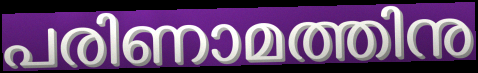
പരിണാമത്തിനു